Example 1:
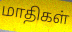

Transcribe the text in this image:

மாதிகள்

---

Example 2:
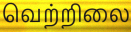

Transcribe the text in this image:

வெற்றிலை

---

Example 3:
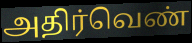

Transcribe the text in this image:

அதிர்வெண்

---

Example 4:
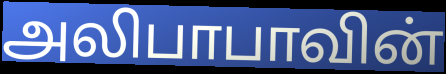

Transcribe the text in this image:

அலிபாபாவின்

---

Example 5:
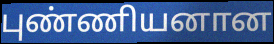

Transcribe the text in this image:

புண்ணியனான